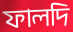
ফালদি